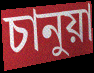
চানুয়া